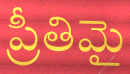
ప్రీతిమై